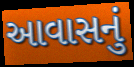
આવાસનું